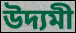
উদ্যমী